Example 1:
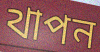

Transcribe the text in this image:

থাপন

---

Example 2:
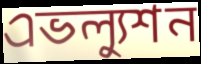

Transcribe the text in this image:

এভল্যুশন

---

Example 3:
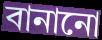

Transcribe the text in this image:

বানানো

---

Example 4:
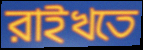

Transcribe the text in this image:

রাইখতে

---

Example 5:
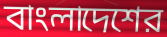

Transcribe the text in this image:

বাংলাদেশের